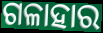
ଗଳାହାର